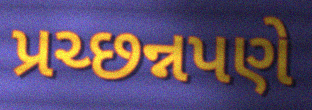
પ્રચ્છન્નપણે